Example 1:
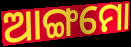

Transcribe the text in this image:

ଆଙ୍ଗମୋ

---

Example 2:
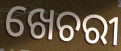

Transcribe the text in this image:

ଖେଚରୀ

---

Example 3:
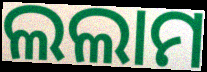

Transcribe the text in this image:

ଲଲାମ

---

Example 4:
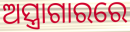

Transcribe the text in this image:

ଅସ୍ତ୍ରାଗାରରେ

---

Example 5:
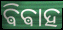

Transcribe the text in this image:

ଵିଵାହ